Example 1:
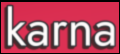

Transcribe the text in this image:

karna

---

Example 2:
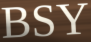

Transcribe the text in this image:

BSY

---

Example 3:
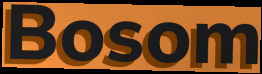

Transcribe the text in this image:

Bosom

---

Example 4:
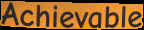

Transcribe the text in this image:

Achievable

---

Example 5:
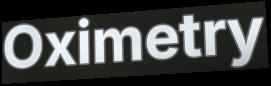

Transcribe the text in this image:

Oximetry